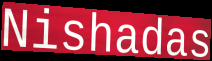
Nishadas